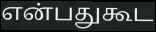
என்பதுகூட